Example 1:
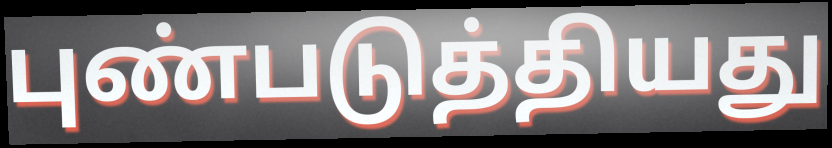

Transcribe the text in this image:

புண்படுத்தியது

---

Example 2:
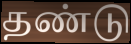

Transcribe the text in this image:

தண்டு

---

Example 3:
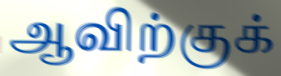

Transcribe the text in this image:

ஆவிற்குக்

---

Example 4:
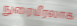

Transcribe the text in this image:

நுரையீரலாக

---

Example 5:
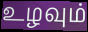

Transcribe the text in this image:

உழவும்